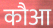
कौआ